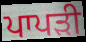
ਪਾਪੜੀ